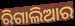
ରିଗାଲିଆର